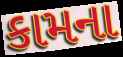
કામના